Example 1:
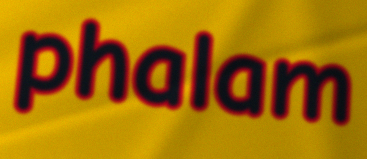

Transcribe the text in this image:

phalam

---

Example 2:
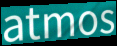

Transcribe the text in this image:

atmos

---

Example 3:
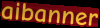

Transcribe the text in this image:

aibanner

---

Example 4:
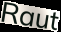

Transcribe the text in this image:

Raut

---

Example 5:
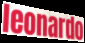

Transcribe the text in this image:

leonardo